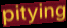
pitying